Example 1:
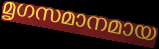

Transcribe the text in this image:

മൃഗസമാനമായ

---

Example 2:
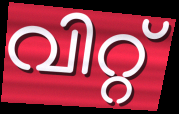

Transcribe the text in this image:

വിറ്റ്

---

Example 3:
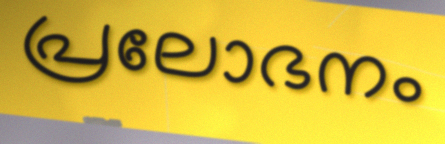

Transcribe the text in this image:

പ്രലോഭനം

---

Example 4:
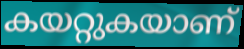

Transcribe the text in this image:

കയറ്റുകയാണ്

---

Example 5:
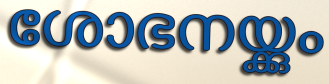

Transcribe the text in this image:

ശോഭനയ്ക്കും